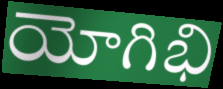
యోగిభి